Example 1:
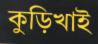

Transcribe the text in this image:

কুড়িখাই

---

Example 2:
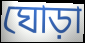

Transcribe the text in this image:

ঘোড়া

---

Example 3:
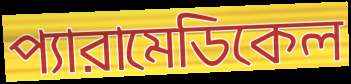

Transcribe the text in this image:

প্যারামেডিকেল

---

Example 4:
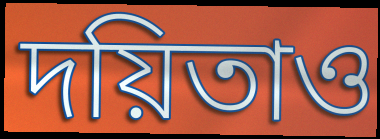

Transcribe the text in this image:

দয়িতাও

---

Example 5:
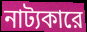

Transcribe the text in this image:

নাট্যকারে